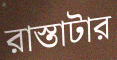
রাস্তাটার